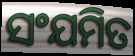
ସଂଯମିତ